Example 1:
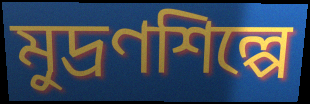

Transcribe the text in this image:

মুদ্রণশিল্পে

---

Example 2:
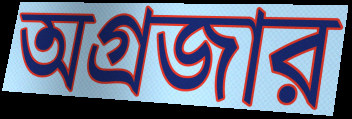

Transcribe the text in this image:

অগ্রজার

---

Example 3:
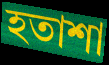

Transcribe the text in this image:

হতাশা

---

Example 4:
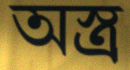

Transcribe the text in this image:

অস্ত্র্র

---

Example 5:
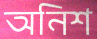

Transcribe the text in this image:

অনিশ